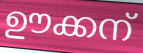
ഊക്കന്